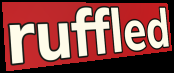
ruffled